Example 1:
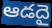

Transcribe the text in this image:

ఆడదై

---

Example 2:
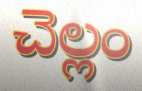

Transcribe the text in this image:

చెల్లం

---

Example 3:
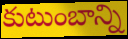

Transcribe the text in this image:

కుటుంబాన్ని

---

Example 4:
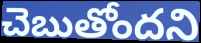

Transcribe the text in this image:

చెబుతోందని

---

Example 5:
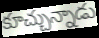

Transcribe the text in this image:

కూచ్చున్నాడు